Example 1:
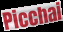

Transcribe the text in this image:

Picchai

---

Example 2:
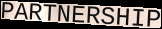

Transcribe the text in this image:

PARTNERSHIP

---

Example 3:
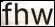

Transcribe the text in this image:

fhw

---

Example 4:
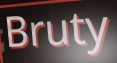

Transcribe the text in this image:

Bruty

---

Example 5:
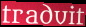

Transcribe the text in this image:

traduit